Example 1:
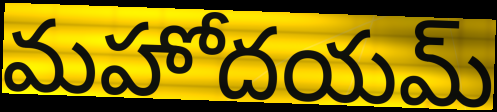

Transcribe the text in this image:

మహోదయమ్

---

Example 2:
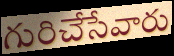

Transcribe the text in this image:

గురిచేసేవారు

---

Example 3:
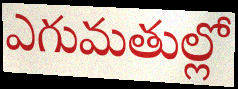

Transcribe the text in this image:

ఎగుమతుల్లో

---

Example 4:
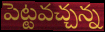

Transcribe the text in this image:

పెట్టవచ్చన్న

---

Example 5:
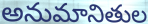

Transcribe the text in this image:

అనుమానితుల